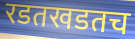
रडतखडतच